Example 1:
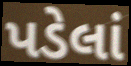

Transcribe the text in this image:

પડેલાં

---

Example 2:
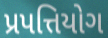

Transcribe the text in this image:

પ્રપત્તિયોગ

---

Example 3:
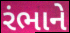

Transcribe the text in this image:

રંભાને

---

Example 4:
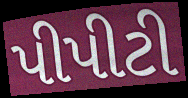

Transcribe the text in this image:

પીપીટી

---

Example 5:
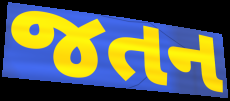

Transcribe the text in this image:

જતન